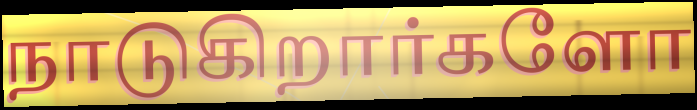
நாடுகிறார்களோ